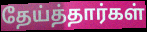
தேய்த்தார்கள்